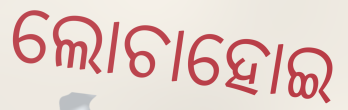
ଲୋଚାହୋଇ